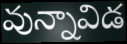
వున్నావిడ